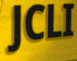
JCLI